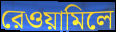
রেওয়ামিলে